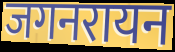
जगनरायन